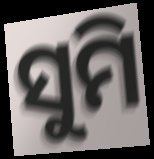
ସୁମି